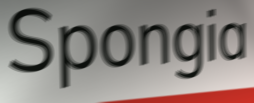
Spongia